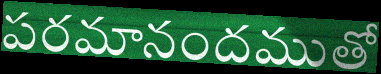
పరమానందముతో